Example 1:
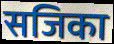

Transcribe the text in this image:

सजिका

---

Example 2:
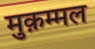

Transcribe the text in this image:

मुक़म्मल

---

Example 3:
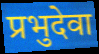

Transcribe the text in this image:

प्रभुदेवा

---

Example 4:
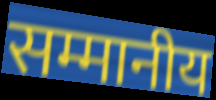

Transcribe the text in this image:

सम्मानीय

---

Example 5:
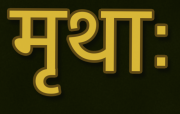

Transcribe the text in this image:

मृथाः